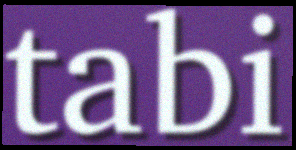
tabi